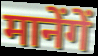
मानेंगें